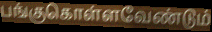
பங்குகொள்ளவேண்டும்